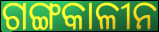
ଗଙ୍ଗକାଳୀନ